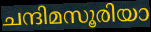
ചന്ദിമസൂരിയാ